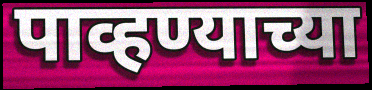
पाव्हण्याच्या